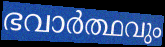
ഭവാർത്ഥവും